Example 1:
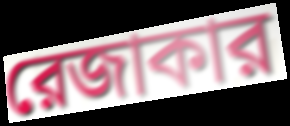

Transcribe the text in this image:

রেজাকার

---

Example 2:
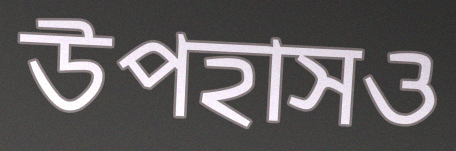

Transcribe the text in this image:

উপহাসও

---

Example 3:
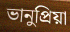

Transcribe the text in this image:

ভানুপ্রিয়া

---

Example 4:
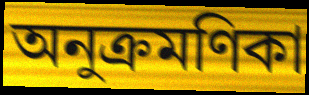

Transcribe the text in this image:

অনুক্রমণিকা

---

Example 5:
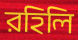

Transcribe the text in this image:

রহিলি